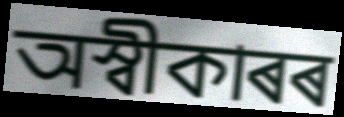
অস্বীকাৰৰ